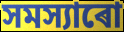
সমস্যাৰো